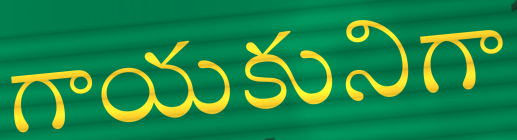
గాయకునిగా